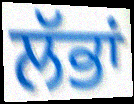
ਲੱਭਾਂ